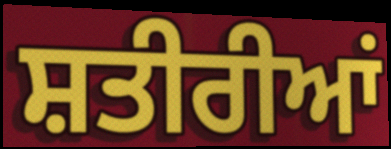
ਸ਼ਤੀਰੀਆਂ